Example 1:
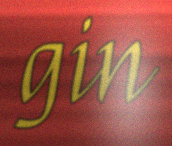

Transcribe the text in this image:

gin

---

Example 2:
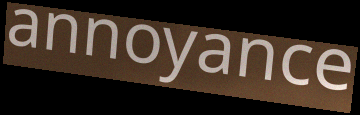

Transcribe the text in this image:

annoyance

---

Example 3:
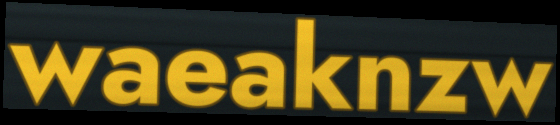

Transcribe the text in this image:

waeaknzw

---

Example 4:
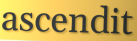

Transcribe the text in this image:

ascendit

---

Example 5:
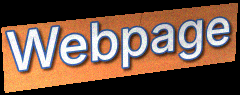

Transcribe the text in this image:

Webpage